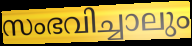
സംഭവിച്ചാലും